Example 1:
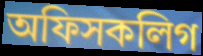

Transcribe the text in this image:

অফিসকলিগ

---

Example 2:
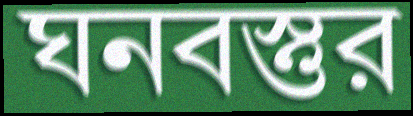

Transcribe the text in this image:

ঘনবস্তুর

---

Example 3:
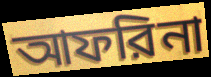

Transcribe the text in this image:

আফরিনা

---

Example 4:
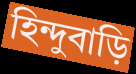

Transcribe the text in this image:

হিন্দুবাড়ি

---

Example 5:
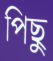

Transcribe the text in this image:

পিছু